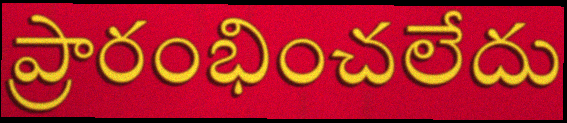
ప్రారంభించలేదు